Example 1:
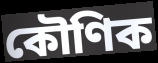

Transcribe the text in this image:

কৌণিক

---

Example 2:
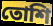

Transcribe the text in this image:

তোশি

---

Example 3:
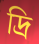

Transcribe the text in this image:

দ্রি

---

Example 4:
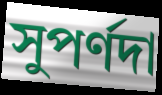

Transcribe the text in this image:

সুপর্ণদা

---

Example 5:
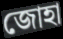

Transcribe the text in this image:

জোহা